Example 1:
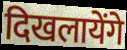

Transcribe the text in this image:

दिखलायेंगे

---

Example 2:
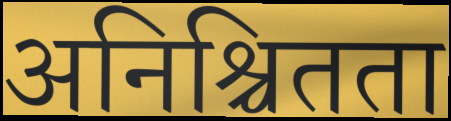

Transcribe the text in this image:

अनिश्चितता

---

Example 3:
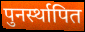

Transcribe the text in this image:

पुनर्स्‍थापित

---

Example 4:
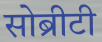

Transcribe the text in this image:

सोब्रीटी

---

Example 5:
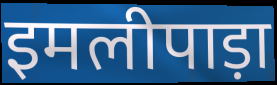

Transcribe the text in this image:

इमलीपाड़ा